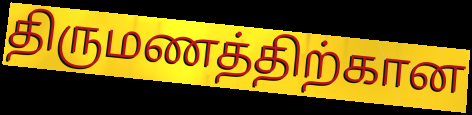
திருமணத்திற்கான